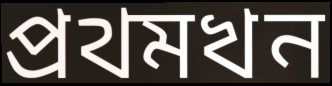
প্ৰথমখন